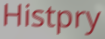
Histpry